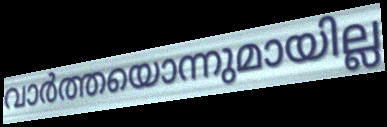
വാർത്തയൊന്നുമായില്ല